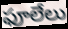
ఫూలేలు